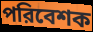
পরিবেশক